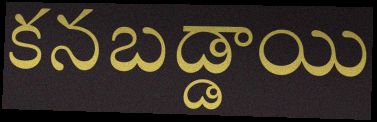
కనబడ్డాయి